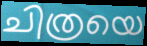
ചിത്രയെ